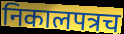
निकालपत्रच